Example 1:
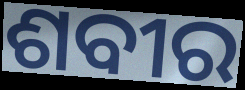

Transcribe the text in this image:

ଶବୀର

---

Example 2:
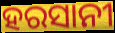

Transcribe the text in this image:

ହରସାନୀ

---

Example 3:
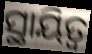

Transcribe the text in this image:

ସ୍ଥାୟିତ୍ୱ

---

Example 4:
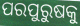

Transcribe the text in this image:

ପରପୁରୁଷକୁ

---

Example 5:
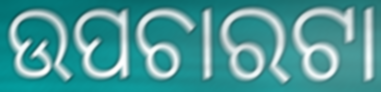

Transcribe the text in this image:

ଉପଚାରଟା